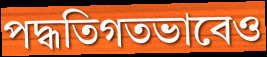
পদ্ধতিগতভাবেও